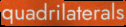
quadrilaterals